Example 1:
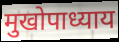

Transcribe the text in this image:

मुखोपाध्याय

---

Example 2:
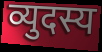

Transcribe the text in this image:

व्युदस्य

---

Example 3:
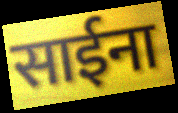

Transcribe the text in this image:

साईना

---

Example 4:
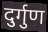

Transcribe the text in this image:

दुर्गुण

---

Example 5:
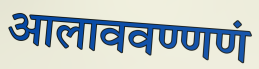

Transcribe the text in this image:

आलाववण्णणं